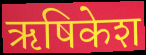
ऋषिकेश